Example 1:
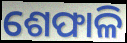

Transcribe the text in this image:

ଶେଫାଳି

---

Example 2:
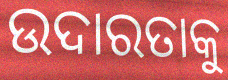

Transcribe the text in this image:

ଉଦାରତାକୁ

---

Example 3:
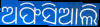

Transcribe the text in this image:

ଅଫିସିଆଲି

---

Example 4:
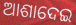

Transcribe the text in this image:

ଆଶାଦେଇ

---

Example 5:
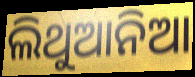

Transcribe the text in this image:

ଲିଥୁଆନିଆ